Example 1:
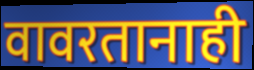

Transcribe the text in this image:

वावरतानाही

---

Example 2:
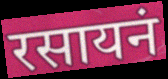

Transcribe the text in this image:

रसायनं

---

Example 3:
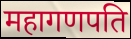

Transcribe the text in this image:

महागणपति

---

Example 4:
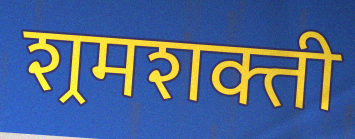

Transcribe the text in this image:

श्रमशक्ती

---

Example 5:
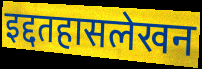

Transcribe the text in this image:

इद्दतहासलेखन